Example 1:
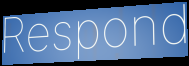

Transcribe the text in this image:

Respond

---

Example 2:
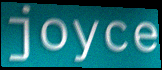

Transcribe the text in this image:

joyce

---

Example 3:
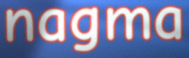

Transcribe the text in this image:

nagma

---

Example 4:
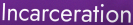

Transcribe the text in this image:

Incarceration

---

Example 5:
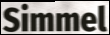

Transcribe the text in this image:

Simmel